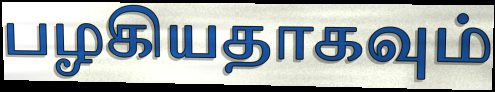
பழகியதாகவும்